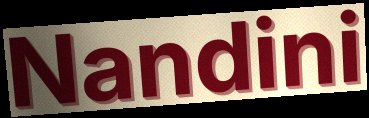
Nandini